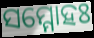
ସମ୍ମୋହଃ